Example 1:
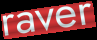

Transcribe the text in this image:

raver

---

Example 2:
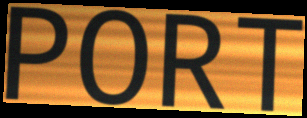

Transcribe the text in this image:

PORT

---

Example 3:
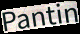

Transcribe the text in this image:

Pantin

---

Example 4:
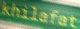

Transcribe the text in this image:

khilafat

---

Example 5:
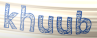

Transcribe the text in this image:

khuub